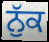
ਨੁੱਕ